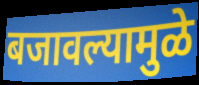
बजावल्यामुळे